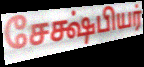
சேக்ஷ்பியர்